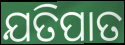
ଯତିପାତ